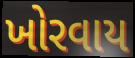
ખોરવાય